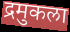
द्रमुकला